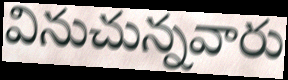
వినుచున్నవారు